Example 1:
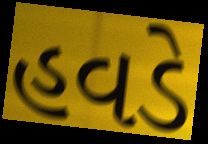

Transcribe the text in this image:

હવડે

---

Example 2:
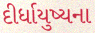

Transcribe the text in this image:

દીર્ધાયુષ્યના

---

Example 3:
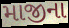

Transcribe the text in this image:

માજીના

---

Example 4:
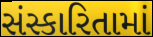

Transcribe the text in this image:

સંસ્કારિતામાં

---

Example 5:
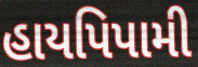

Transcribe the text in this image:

હાયપિપામી